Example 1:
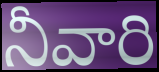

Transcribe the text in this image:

నీవారి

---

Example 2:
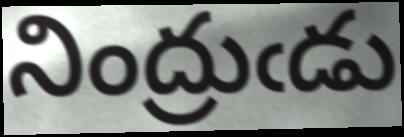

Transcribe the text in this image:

నింద్రుఁడు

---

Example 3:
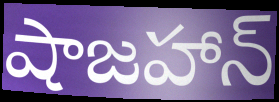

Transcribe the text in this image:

షాజహాన్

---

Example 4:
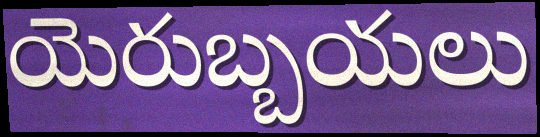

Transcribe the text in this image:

యెరుబ్బయలు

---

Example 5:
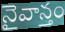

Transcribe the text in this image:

నైవాన్తం